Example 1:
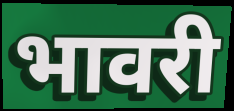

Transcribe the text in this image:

भावरी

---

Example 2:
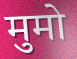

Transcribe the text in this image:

मुमो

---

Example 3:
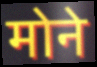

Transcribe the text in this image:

मोने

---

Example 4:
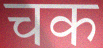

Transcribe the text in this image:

चक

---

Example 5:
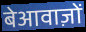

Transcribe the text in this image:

बेआवाज़ों